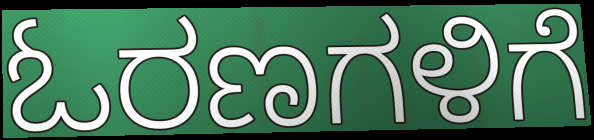
ಓರಣಗಳಿಗೆ